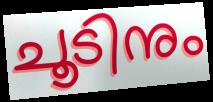
ചൂടിനും